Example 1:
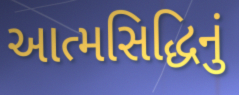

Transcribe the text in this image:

આત્મસિદ્ધિનું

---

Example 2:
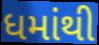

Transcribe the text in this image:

ધમાંથી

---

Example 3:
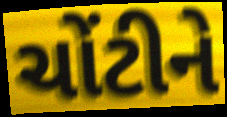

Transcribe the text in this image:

ચોંટીને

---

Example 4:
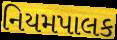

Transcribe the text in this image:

નિયમપાલક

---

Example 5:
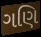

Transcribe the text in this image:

ગણિ